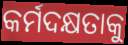
କର୍ମଦକ୍ଷତାକୁ